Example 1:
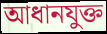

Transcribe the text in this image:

আধানযুক্ত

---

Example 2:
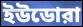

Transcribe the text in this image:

ইউডোরা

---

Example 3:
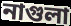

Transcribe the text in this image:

নাগুলা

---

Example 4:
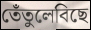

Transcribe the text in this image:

তেঁতুলেবিছে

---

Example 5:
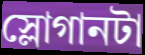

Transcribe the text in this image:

স্লোগানটা